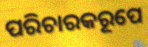
ପରିଚାରକରୂପେ